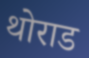
थोराड